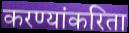
करण्यांकरिता